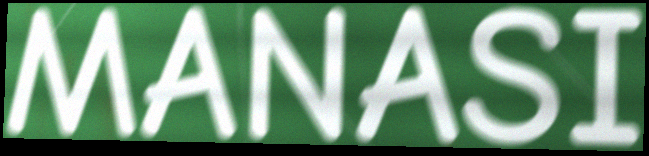
MANASI